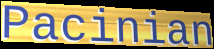
Pacinian